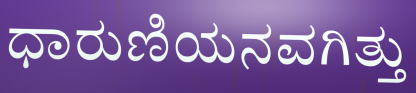
ಧಾರುಣಿಯನವಗಿತ್ತು